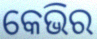
କେଭିର